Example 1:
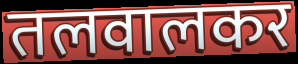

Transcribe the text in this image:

तलवालकर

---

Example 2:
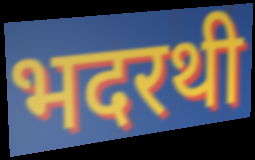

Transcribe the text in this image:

भदरथी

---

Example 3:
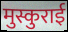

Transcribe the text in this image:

मुस्कुराई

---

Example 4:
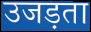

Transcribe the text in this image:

उजड़ता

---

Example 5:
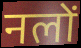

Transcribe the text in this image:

नलों